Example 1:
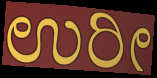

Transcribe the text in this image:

ಉರೀ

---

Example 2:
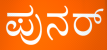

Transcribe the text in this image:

ಪುನರ್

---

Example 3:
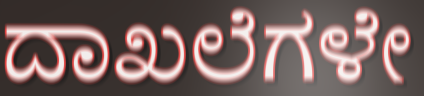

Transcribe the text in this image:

ದಾಖಲೆಗಳೇ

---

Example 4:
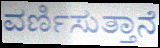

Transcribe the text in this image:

ವರ್ಣಿಸುತ್ತಾನೆ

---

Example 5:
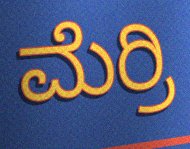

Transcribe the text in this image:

ಮೆರ್ರಿ